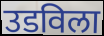
उडविला